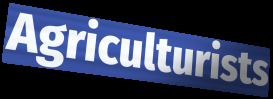
Agriculturists